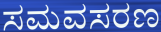
ಸಮವಸರಣ